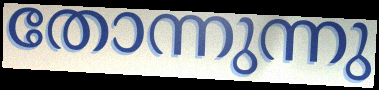
തോന്നുന്നു